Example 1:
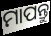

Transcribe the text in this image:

ମାପନ୍ତୁ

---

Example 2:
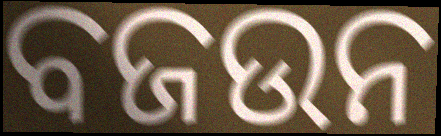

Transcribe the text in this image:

ବଜଉନ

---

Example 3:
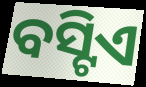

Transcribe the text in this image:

ବସ୍ଟିଏ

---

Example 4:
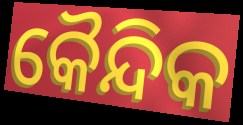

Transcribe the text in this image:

କୈନ୍ଦିକ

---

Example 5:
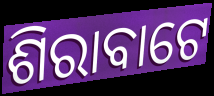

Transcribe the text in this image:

ଶିରାବାଟେ